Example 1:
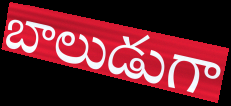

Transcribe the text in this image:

బాలుడుగా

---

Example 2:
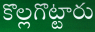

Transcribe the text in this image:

కొల్లగొట్టారు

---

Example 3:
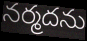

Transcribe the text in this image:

నర్మదను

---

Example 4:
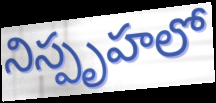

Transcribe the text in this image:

నిస్పృహలో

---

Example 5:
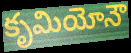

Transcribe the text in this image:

కృమియోనౌ